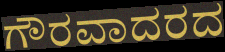
ಗೌರವಾದರದ